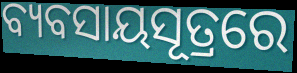
ବ୍ୟବସାୟସୂତ୍ରରେ